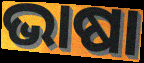
ଭାଷା